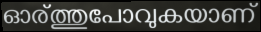
ഓര്ത്തുപോവുകയാണ്